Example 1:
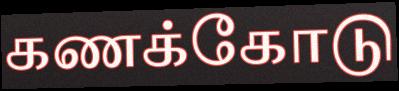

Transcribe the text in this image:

கணக்கோடு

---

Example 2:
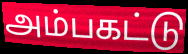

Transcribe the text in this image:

அம்பகட்டு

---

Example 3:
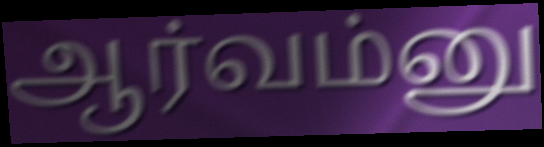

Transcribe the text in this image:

ஆர்வம்னு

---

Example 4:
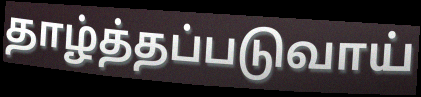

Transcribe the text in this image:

தாழ்த்தப்படுவாய்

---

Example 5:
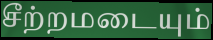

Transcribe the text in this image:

சீற்றமடையும்